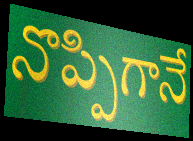
నొప్పిగానే